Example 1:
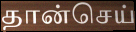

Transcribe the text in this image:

தான்செய்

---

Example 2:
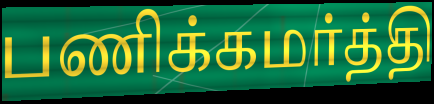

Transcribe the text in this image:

பணிக்கமர்த்தி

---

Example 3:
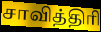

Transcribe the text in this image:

சாவித்திரி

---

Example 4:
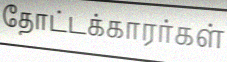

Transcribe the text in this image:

தோட்டக்காரர்கள்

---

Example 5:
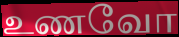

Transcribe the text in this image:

உணவோ